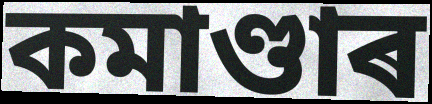
কমাণ্ডাৰ